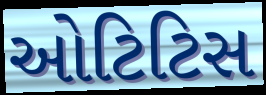
ઓટિટિસ